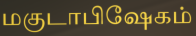
மகுடாபிஷேகம்